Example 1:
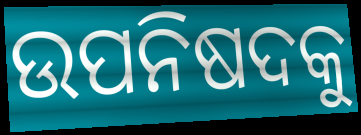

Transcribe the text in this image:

ଉପନିଷଦକୁ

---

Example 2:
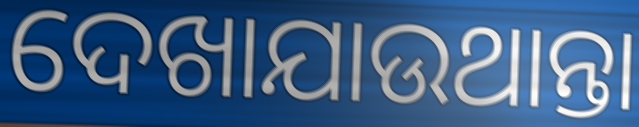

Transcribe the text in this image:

ଦେଖାଯାଉଥାନ୍ତା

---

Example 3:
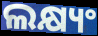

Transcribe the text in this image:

ଲକ୍ଷ୍ୟଂ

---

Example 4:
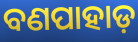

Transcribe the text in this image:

ବଣପାହାଡ଼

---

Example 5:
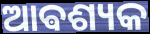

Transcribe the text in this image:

ଆଵଶ୍ୟକ